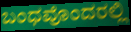
ಬಂಧವೊಂದರಲ್ಲಿ